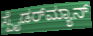
ಸ್ಪೈಡರ್‌ಮ್ಯಾನ್